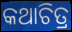
କଥାଚିତ୍ର